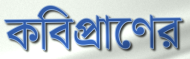
কবিপ্রাণের